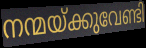
നന്മയ്ക്കുവേണ്ടി